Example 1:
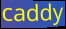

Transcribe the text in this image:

caddy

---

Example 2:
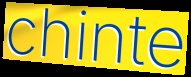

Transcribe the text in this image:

chinte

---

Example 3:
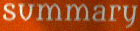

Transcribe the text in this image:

summary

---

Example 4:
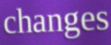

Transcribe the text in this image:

changes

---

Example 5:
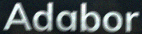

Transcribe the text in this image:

Adabor